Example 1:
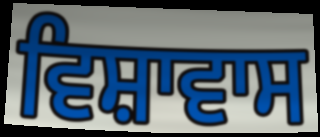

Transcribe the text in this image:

ਵਿਸ਼ਾਵਾਸ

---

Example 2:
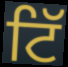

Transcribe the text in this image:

ਟਿੱ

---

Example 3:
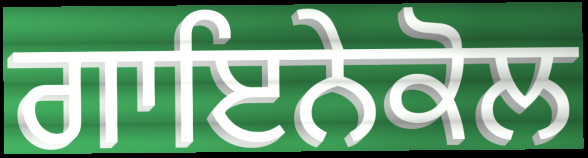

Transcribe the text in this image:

ਗਾਇਨੇਕੋਲ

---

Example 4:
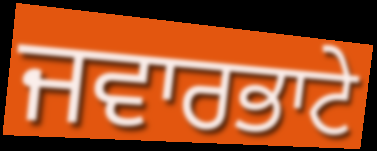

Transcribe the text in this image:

ਜਵਾਰਭਾਟੇ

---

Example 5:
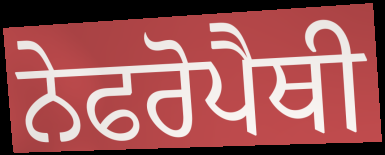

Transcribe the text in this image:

ਨੇਫਰੋਪੈਥੀ